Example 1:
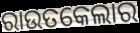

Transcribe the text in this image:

ରାଉତକେଲାର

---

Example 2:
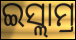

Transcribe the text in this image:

ଇସ୍ଲାମ୍ର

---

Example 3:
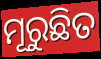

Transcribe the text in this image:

ମୂରୁଛିତ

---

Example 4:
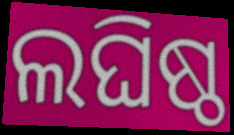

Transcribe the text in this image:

ଲଘିଷ୍ଠ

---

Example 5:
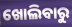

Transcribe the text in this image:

ଖୋଲିବାରୁ